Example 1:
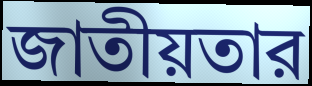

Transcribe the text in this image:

জাতীয়তার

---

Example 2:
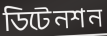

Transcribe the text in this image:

ডিটেনশন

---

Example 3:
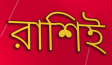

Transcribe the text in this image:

রাশিই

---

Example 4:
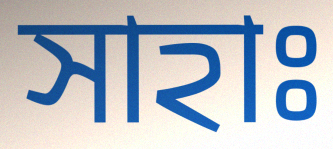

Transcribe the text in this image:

সাহাঃ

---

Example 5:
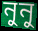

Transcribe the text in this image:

নুনু